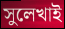
সুলেখাই